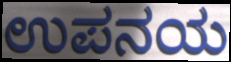
ಉಪನಯ